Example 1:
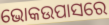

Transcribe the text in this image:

ଭୋକଉପାସରେ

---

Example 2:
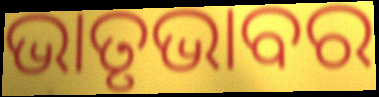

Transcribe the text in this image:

ଭାତୃଭାବର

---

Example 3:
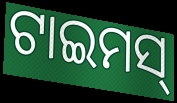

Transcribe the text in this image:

ଟାଇମସ୍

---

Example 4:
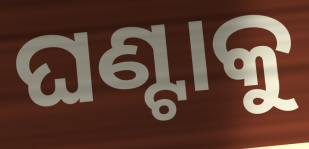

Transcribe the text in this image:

ଘଣ୍ଟାକୁ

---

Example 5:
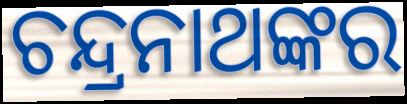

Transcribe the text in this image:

ଚନ୍ଦ୍ରନାଥଙ୍କର